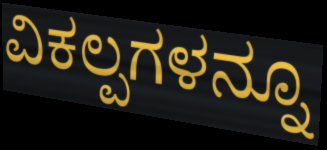
ವಿಕಲ್ಪಗಳನ್ನೂ